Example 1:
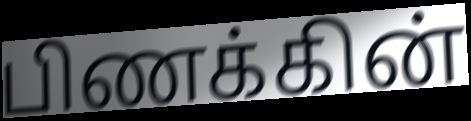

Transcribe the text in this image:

பிணக்கின்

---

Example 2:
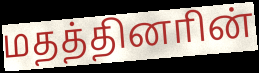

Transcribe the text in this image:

மதத்தினரின்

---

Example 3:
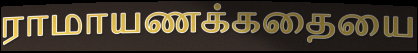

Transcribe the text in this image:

ராமாயணக்கதையை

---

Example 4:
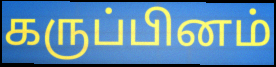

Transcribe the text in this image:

கருப்பினம்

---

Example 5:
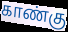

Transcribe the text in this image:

காண்கு